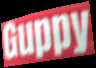
Guppy